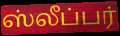
ஸ்லீப்பர்